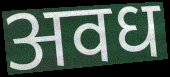
अवध